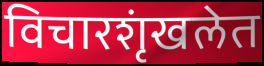
विचारशृंखलेत